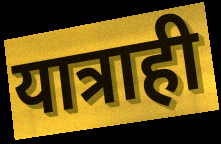
यात्राही